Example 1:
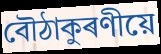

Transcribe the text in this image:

বৌঠাকুৰণীয়ে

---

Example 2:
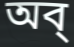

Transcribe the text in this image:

অব্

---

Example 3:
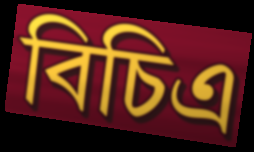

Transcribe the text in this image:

বিচিএ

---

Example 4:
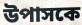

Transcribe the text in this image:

উপাসকে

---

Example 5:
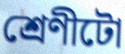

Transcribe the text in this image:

শ্ৰেণীটো